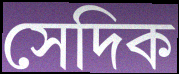
সেদিক